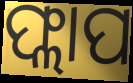
ଫ୍ଲାପ